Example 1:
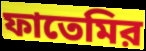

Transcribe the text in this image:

ফাতেমির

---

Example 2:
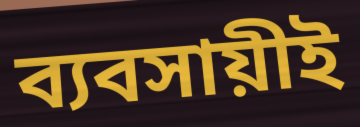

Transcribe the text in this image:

ব্যবসায়ীই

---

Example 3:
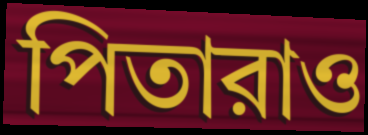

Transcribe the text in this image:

পিতারাও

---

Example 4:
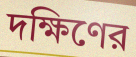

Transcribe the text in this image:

দক্ষিণের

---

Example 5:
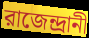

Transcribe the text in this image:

রাজেন্দ্রানী